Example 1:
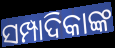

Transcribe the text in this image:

ସମ୍ପାଦିକାଙ୍କ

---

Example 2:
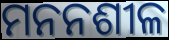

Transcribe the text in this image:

ମନନଶୀଳ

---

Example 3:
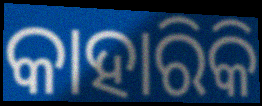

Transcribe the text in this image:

କାହାରିକି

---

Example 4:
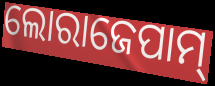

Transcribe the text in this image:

ଲୋରାଜେପାମ୍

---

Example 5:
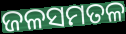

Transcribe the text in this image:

ଜଳସମତଳ